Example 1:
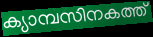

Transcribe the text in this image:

ക്യാമ്പസിനകത്ത്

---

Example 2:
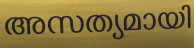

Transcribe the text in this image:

അസത്യമായി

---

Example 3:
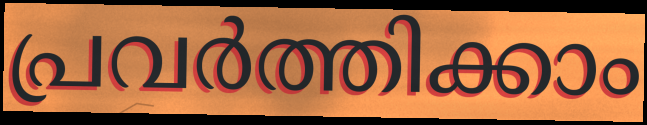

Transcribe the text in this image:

പ്രവർത്തിക്കാം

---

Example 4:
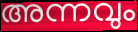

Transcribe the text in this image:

അന്നവും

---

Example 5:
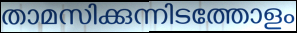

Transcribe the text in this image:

താമസിക്കുന്നിടത്തോളം